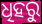
ଧିହରୁ